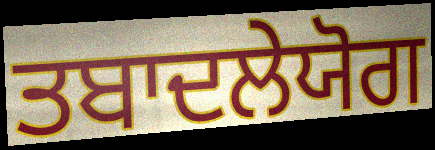
ਤਬਾਦਲੇਯੋਗ